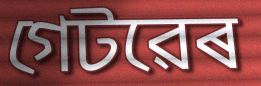
গেটৱেৰ